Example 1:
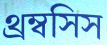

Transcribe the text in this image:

থ্রম্বসিস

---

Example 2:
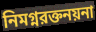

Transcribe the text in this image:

নিমগ্নরক্তনয়না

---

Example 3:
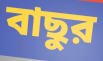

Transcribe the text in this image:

বাছুর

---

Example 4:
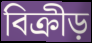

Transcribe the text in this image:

বিক্রীড়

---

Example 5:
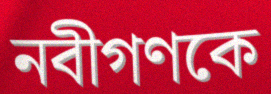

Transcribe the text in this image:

নবীগণকে